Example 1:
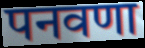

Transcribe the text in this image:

पनवणा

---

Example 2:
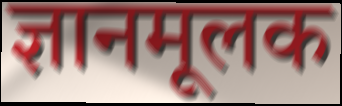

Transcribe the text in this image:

ज्ञानमूलक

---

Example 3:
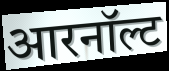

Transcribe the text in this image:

आरनॉल्ट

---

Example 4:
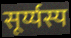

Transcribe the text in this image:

सूर्य्यस्य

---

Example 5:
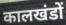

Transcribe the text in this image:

कालखंडों